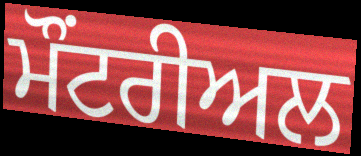
ਮੌਂਟਰੀਅਲ